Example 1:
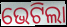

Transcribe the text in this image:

ଭେଟିଲା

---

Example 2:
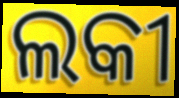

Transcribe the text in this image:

ଲକୀ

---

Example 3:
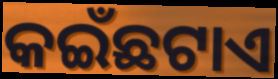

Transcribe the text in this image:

କଇଁଛଟାଏ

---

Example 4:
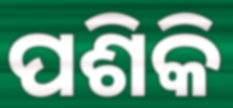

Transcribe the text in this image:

ପଶିକି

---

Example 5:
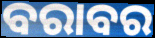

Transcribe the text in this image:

ବରାବର